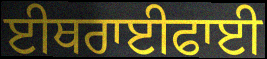
ਈਥਰਾਈਫਾਈ